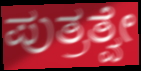
ಪುತ್ರತ್ವೇ